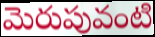
మెరుపువంటి